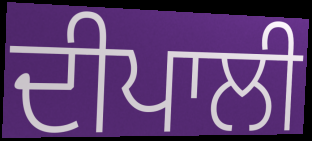
ਦੀਪਾਲੀ